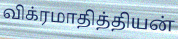
விக்ரமாதித்தியன்